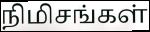
நிமிசங்கள்